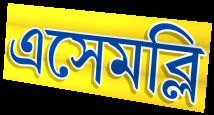
এসেমব্লি